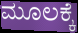
ಮೂಲಕ್ಕೆ